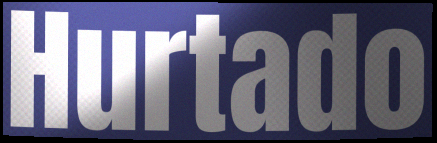
Hurtado